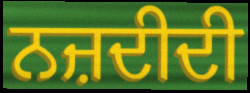
ਨਜ਼ਦੀਦੀ